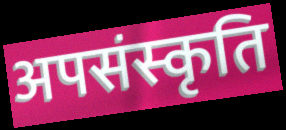
अपसंस्कृति